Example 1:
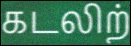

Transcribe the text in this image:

கடலிற்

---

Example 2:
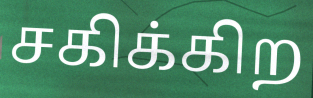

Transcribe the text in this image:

சகிக்கிற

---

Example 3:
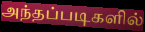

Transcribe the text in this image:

அந்தப்படிகளில்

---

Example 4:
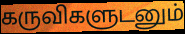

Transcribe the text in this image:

கருவிகளுடனும்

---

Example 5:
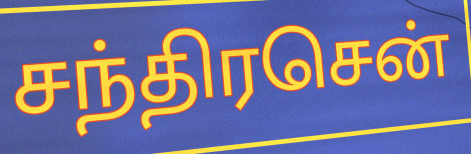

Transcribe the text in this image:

சந்திரசென்